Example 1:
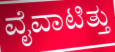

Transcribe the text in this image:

ವೈವಾಟಿತ್ತು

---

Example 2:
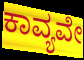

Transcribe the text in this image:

ಕಾವ್ಯವೇ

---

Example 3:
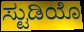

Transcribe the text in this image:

ಸ್ಟುಡಿಯೊ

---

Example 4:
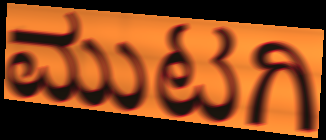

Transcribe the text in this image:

ಮುಟಗಿ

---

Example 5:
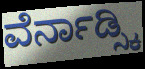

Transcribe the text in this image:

ವೆರ್ನಾಡ್ಸ್ಕಿ